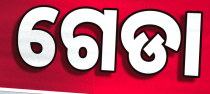
ଗେଡା